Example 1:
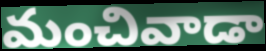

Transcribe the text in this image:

మంచివాడా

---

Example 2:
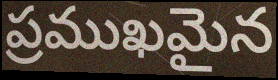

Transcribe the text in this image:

ప్రముఖమైన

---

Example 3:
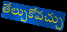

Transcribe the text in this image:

తేల్చుకోవచ్చు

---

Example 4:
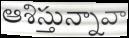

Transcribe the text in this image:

ఆశిస్తున్నావా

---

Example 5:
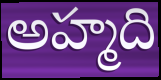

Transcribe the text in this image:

అహ్మది